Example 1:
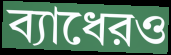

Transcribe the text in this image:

ব্যাধেরও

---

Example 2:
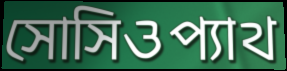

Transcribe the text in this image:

সোসিওপ্যাথ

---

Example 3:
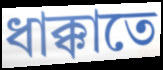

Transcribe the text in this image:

ধাক্কাতে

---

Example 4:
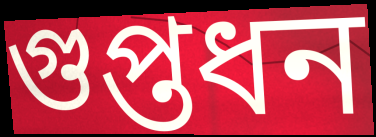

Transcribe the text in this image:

গুপ্তধন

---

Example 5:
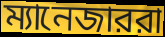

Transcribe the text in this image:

ম্যানেজাররা